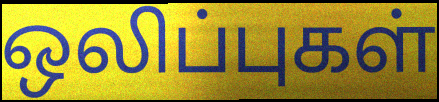
ஒலிப்புகள்